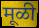
मूळी